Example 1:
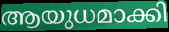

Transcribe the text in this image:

ആയുധമാക്കി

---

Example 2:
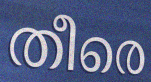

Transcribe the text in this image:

തീരെ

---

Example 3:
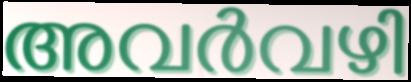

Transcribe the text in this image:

അവർവഴി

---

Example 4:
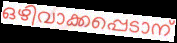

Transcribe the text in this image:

ഒഴിവാക്കപ്പെടാന്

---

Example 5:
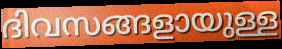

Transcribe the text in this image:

ദിവസങ്ങളായുള്ള